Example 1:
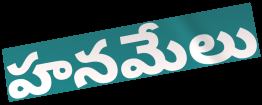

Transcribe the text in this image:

హనమేలు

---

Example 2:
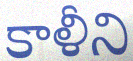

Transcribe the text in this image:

కాళీని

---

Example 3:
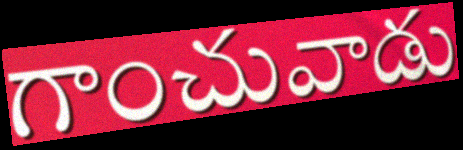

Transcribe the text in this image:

గాంచువాడు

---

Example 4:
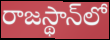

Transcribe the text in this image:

రాజస్థాన్‌లో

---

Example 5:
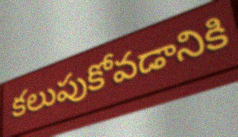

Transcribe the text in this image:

కలుపుకోవడానికి